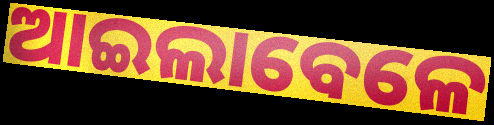
ଆଇଲାବେଳେ